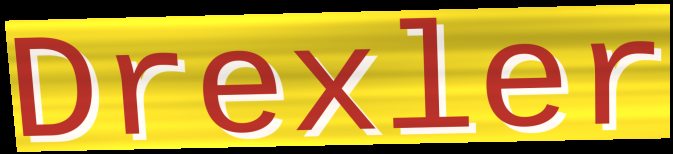
Drexler